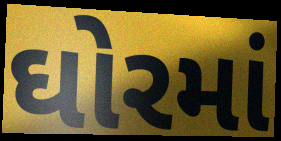
ઘોરમાં